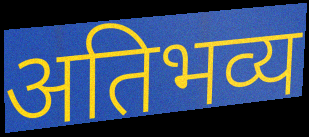
अतिभव्य